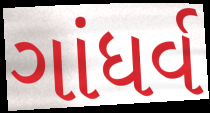
ગાંધર્વ